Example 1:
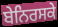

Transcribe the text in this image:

ਬੇਨਿਰਸਕੇ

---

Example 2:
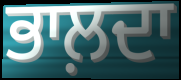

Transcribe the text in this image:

ਭਾਲ਼ਦਾ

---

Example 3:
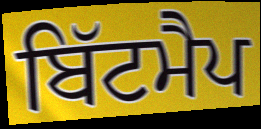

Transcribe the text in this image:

ਬਿੱਟਮੈਪ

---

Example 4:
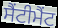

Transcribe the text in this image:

ਸੈਂਟੀਮੈਂਟ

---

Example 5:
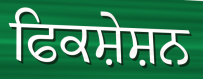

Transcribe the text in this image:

ਫਿਕਸ਼ੇਸ਼ਨ